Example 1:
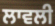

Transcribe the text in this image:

ਲਾਵਲੀ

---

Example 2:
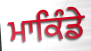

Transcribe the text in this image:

ਮਾਕਿੰਡੇ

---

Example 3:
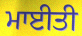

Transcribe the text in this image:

ਮਾਈਤੀ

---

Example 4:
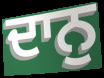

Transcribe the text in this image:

ਦਾਨੁ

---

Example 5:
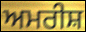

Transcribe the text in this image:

ਅਮਰੀਸ਼